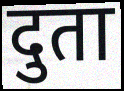
दुता